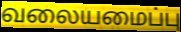
வலையமைப்பு